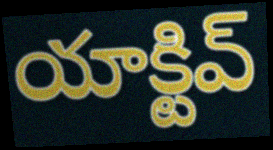
యాక్టివ్